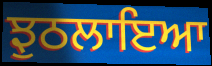
ਝੁਠਲਾਇਆ